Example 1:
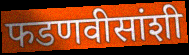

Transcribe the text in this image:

फडणवीसांशी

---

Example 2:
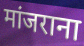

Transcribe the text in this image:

मांजराना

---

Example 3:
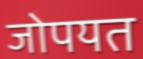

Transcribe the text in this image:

जोपयत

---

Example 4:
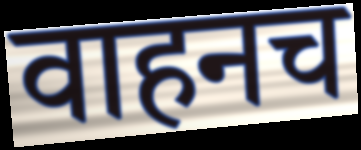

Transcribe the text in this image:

वाहनच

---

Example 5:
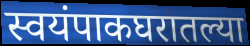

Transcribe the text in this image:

स्वयंपाकघरातल्या